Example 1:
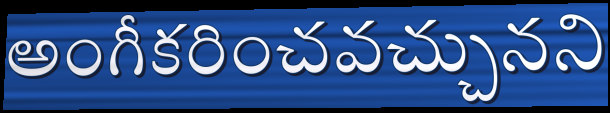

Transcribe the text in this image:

అంగీకరించవచ్చునని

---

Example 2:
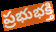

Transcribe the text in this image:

ప్రభుభక్తి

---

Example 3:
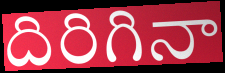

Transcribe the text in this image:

దిరిగినా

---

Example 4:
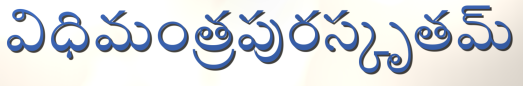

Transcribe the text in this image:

విధిమంత్రపురస్కృతమ్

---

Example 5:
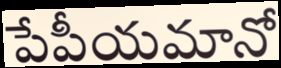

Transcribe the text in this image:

పేపీయమానో